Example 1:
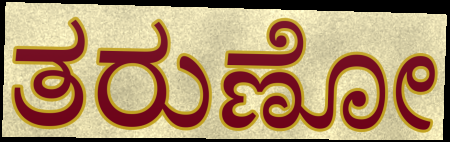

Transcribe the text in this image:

ತರುಣೋ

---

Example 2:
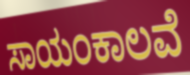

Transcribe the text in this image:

ಸಾಯಂಕಾಲವೆ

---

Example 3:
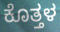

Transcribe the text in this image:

ಕೊತ್ತಳ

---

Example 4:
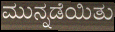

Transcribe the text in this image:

ಮುನ್ನಡೆಯಿತು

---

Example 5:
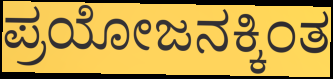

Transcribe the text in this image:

ಪ್ರಯೋಜನಕ್ಕಿಂತ